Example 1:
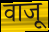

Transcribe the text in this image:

वाजू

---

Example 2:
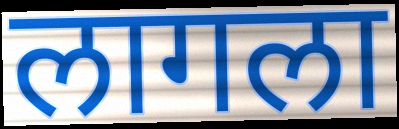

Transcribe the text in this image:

लागला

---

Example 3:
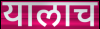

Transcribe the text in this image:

यालाच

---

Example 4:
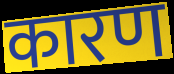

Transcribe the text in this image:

कारण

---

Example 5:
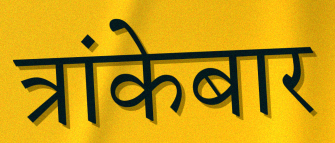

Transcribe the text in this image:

त्रांकेबार